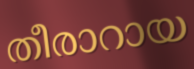
തീരാറായ